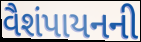
વૈશંપાયનની